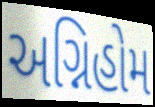
અગ્નિહોમ